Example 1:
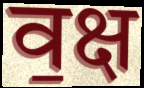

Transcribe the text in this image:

व॒क्ष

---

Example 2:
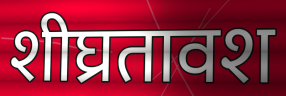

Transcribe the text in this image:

शीघ्रतावश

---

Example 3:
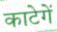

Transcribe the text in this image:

काटेगें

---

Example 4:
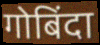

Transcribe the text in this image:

गोबिंदा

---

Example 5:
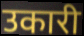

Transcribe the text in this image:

उकारी